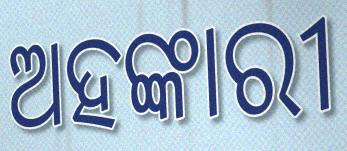
ଅହଙ୍କାରୀ